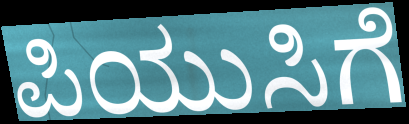
ಪಿಯುಸಿಗೆ